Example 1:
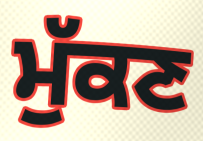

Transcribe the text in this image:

ਮੁੱਕਣ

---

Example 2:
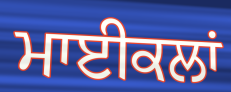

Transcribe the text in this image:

ਮਾਈਕਲਾਂ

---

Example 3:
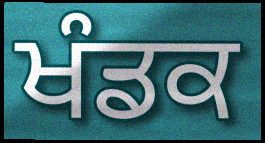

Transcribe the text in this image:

ਖੰਡਕ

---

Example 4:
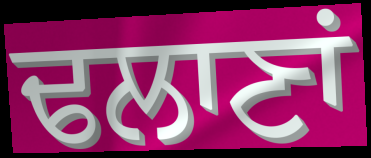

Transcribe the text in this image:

ਢਲਾਣਾਂ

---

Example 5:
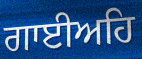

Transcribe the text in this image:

ਗਾਈਅਹਿ